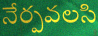
నేర్పవలసి